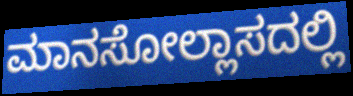
ಮಾನಸೋಲ್ಲಾಸದಲ್ಲಿ